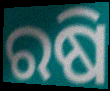
ରଷି